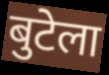
बुटेला